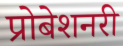
प्रोबेशनरी